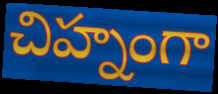
చిహ్నంగా